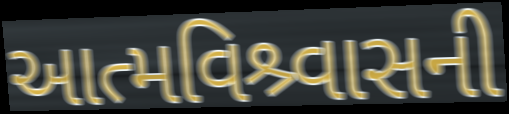
આત્મવિશ્ર્વાસની